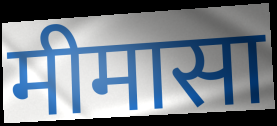
मीमासा